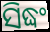
ସିଦ୍ଧଂ